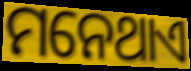
ମନେଥାଏ